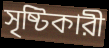
সৃষ্টিকারী